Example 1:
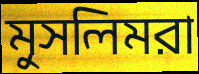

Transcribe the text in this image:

মুসলিমরা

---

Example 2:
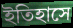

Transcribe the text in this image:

ইতিহাসে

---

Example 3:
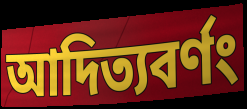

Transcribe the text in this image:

আদিত্যবর্ণং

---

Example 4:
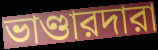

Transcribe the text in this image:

ভাণ্ডারদারা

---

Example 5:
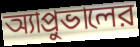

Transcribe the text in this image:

অ্যাপ্রুভালের